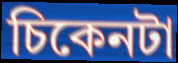
চিকেনটা